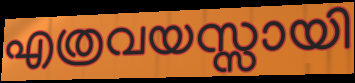
എത്രവയസ്സായി